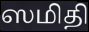
ஸமிதி